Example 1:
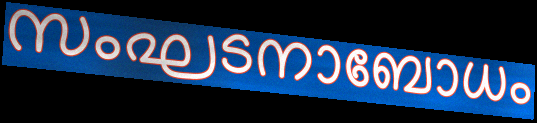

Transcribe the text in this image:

സംഘടനാബോധം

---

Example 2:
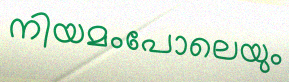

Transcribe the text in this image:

നിയമംപോലെയും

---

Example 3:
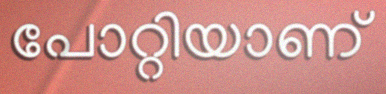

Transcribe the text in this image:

പോറ്റിയാണ്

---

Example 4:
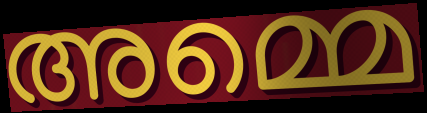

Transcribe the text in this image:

അമ്മെ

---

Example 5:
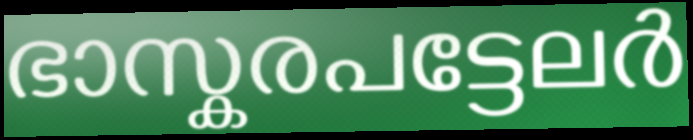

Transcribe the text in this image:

ഭാസ്കരപട്ടേലർ